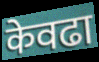
केवढा